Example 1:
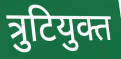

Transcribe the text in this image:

त्रुटियुक्त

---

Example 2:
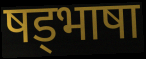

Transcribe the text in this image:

षड्भाषा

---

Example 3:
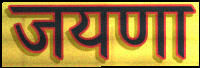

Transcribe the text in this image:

जयणा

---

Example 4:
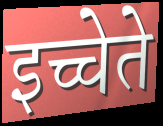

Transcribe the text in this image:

इच्चेते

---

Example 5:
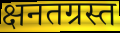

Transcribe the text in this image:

क्षनतग्रस्त